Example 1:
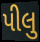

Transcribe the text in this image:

પીલુ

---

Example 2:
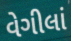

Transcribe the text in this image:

વેગીલાં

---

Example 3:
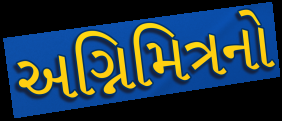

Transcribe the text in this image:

અગ્નિમિત્રનો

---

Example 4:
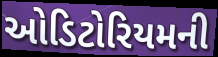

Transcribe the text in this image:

ઓડિટોરિયમની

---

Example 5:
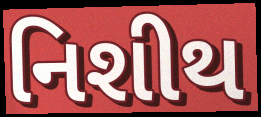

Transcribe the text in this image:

નિશીથ